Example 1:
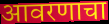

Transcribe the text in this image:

आवरणाचा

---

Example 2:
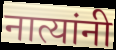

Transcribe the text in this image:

नात्यांनी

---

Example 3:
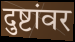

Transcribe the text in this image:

दुष्टांवर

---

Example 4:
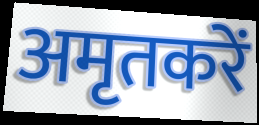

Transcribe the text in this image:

अमृतकरें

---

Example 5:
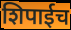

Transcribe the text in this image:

शिपाईच